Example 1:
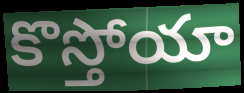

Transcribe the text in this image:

కొస్తోయా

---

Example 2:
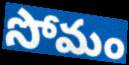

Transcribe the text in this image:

సోమం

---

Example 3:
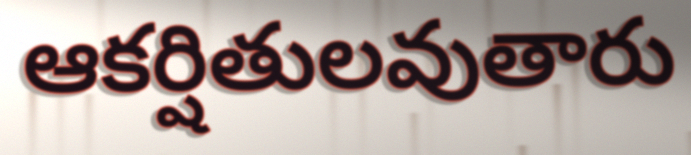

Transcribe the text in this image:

ఆకర్షితులవుతారు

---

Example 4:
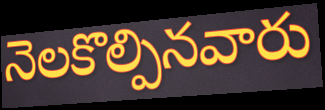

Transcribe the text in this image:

నెలకొల్పినవారు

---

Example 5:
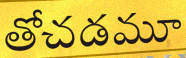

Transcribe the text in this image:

తోచడమూ